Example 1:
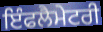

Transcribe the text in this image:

ਇੰਫਲੈਮੇਟਰੀ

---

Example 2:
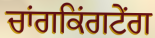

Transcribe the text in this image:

ਚਾਂਗਕਿਂਗਟੇਂਗ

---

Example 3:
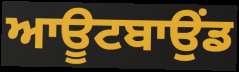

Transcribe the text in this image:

ਆਊਟਬਾਉਂਡ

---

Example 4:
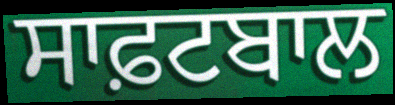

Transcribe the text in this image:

ਸਾਫ਼ਟਬਾਲ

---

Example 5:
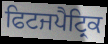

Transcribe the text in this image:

ਫਿਟਜਪੈਟ੍ਰਿਕ